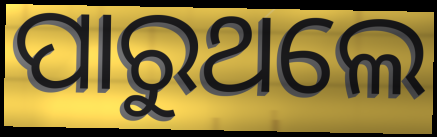
ପାରୁଥଲେ